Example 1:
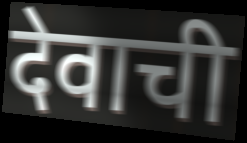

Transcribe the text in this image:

देवाची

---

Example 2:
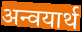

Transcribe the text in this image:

अन्वयार्थ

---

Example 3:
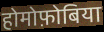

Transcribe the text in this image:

होमोफ़ोबिया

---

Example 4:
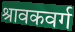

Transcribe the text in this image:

श्रावकवर्ग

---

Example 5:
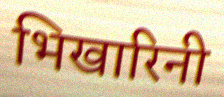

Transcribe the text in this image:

भिखारिनी